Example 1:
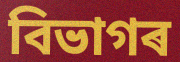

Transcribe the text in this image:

বিভাগৰ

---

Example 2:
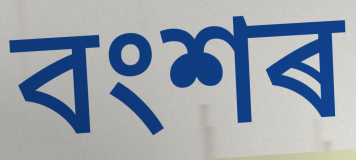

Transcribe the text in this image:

বংশৰ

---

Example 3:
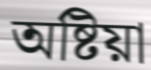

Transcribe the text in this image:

অষ্টিয়া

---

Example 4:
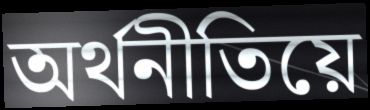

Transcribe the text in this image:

অৰ্থনীতিয়ে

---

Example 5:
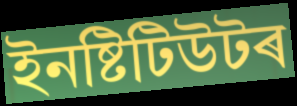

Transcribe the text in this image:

ইনষ্টিটিউটৰ